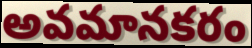
అవమానకరం